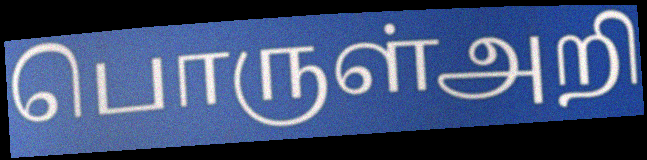
பொருள்அறி